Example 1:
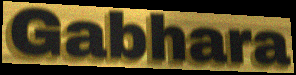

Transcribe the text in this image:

Gabhara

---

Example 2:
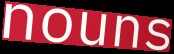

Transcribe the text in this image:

nouns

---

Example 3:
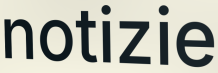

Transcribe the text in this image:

notizie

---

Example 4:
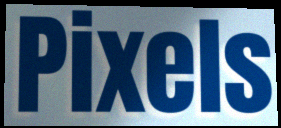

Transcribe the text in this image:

Pixels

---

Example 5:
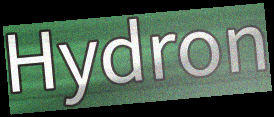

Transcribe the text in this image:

Hydron